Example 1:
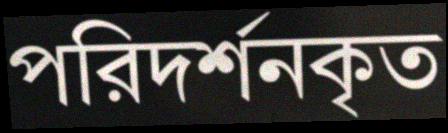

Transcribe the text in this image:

পরিদর্শনকৃত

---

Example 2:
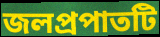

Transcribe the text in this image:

জলপ্রপাতটি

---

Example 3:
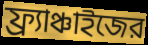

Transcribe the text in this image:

ফ্র্যাঞ্চাইজের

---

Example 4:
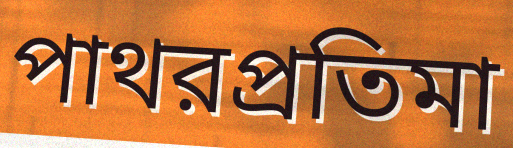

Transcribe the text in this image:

পাথরপ্রতিমা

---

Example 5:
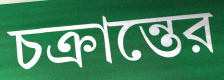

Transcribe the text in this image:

চক্রান্তের